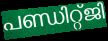
പണ്ഡിറ്റ്ജി